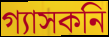
গ্যাসকনি